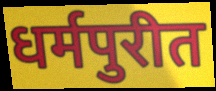
धर्मपुरीत